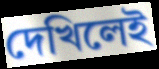
দেখিলেই